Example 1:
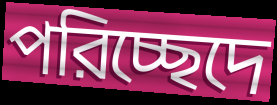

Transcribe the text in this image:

পরিচ্ছেদে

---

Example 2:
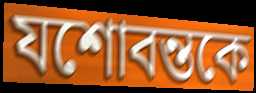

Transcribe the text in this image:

যশোবন্তকে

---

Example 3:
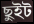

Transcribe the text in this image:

ছুইট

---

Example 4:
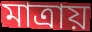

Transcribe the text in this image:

মাত্রায়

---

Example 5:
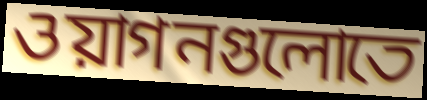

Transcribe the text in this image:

ওয়াগনগুলোতে